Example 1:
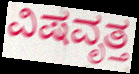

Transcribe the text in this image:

ವಿಷವೃತ್ತ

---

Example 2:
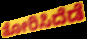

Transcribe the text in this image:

ತೋರಿಸಿದೆಡೆ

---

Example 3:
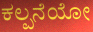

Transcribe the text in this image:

ಕಲ್ಪನೆಯೋ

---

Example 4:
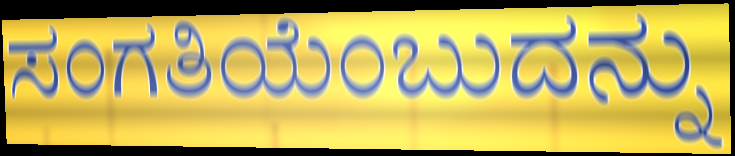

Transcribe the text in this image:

ಸಂಗತಿಯೆಂಬುದನ್ನು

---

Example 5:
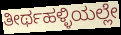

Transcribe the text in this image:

ತೀರ್ಥಹಳ್ಳಿಯಲ್ಲೇ